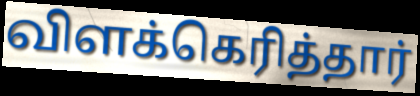
விளக்கெரித்தார்